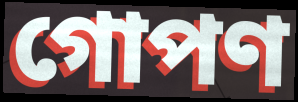
গোপণ